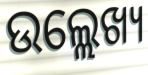
ଉଲ୍ଲେଖ୍ୟ